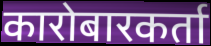
कारोबारकर्ता